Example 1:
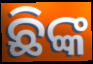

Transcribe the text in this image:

ଛିଙ୍କ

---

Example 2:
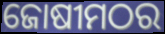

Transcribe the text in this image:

ଜୋଷୀମଠର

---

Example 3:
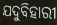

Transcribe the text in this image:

ଯଦୁବିହାରୀ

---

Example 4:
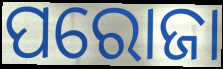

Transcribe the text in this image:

ପରୋଜା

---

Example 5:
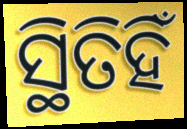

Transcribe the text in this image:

ସ୍ଥିତିହିଁ